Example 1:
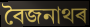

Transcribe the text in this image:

বৈজনাথৰ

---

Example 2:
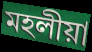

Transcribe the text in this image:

মহলীয়া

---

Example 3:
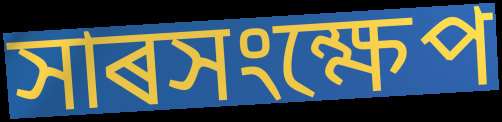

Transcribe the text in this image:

সাৰসংক্ষেপ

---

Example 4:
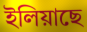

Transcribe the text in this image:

ইলিয়াছে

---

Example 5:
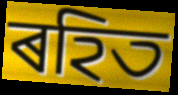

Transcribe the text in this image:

ৰহিত